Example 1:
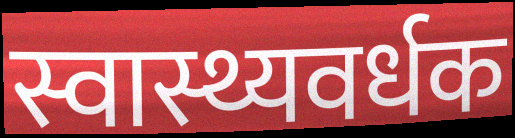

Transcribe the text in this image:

स्वास्थ्यवर्धक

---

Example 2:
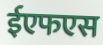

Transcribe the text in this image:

ईएफएस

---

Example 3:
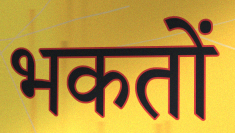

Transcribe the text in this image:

भकतों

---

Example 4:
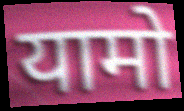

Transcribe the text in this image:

यामो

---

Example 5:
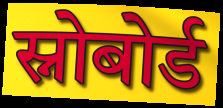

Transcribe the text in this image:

स्नोबोर्ड